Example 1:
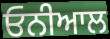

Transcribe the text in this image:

ਓਨੀਆਲ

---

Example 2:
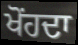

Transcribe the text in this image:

ਖੋਂਹਦਾ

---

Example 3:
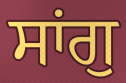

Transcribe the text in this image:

ਸਾਂਗੁ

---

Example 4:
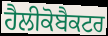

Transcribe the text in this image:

ਹੈਲੀਕੋਬੈਕਟਰ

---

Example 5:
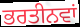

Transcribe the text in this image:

ਭਰਤੀਨਵਾਂ